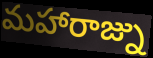
మహారాజ్ను